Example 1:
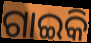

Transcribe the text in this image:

ଗାଇକି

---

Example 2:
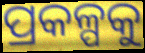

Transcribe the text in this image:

ପ୍ରକଳ୍ପକୁ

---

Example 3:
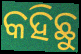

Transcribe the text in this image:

କହିଛୁ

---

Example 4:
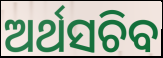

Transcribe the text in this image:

ଅର୍ଥସଚିବ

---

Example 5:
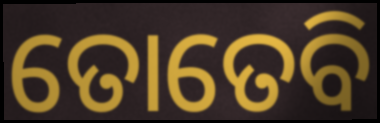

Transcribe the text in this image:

ତୋତେବି